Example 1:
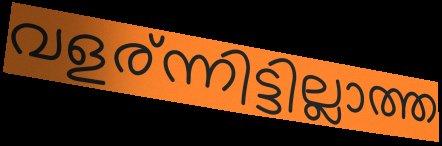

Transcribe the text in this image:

വളര്ന്നിട്ടില്ലാത്ത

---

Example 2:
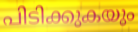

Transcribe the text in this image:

പിടിക്കുകയും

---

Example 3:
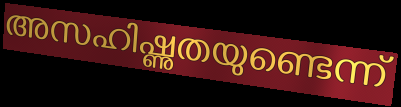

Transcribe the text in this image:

അസഹിഷ്ണുതയുണ്ടെന്ന്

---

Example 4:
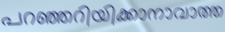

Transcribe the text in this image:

പറഞ്ഞറിയിക്കാനാവാത്ത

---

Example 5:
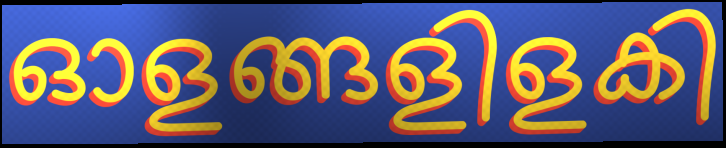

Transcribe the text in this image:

ഓളങ്ങളിളകി